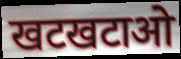
खटखटाओ